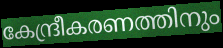
കേന്ദ്രീകരണത്തിനും